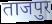
ताजपुर